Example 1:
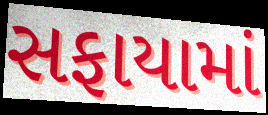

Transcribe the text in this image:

સફાયામાં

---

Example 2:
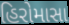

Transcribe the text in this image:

હિરોમાસા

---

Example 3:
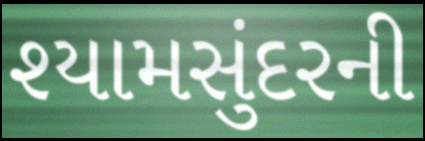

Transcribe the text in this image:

શ્યામસુંદરની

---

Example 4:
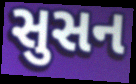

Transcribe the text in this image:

સુસન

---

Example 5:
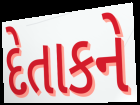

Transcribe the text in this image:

દેતાકને